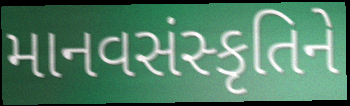
માનવસંસ્કૃતિને